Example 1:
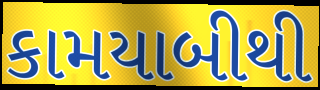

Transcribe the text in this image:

કામયાબીથી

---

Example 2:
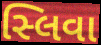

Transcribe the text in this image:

સ્લિવા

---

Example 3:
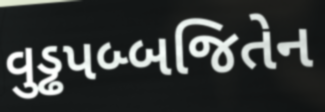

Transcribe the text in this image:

વુડ્ઢપબ્બજિતેન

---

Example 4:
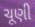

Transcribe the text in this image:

ચૂણી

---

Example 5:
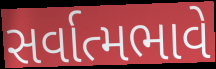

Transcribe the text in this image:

સર્વાત્મભાવે